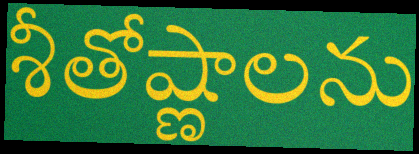
శీతోష్ణాలను